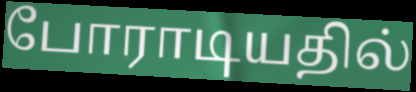
போராடியதில்